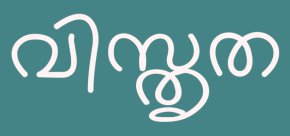
വിസ്തൃത